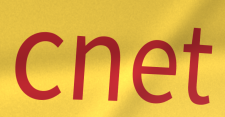
cnet